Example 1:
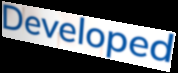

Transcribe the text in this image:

Developed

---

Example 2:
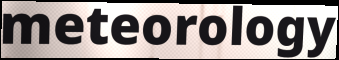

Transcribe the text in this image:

meteorology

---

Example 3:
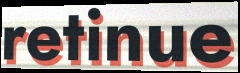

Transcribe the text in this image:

retinue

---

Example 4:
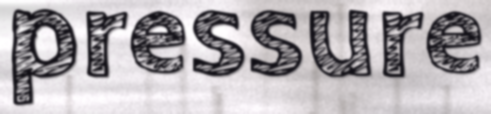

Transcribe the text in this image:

pressure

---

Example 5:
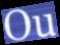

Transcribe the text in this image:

Ou